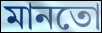
মানতো